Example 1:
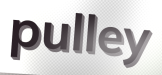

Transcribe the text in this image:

pulley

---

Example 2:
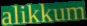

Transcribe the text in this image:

alikkum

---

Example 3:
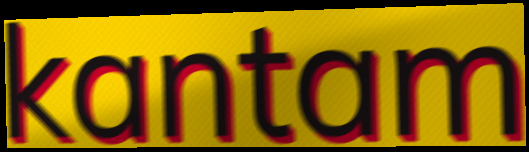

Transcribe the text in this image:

kantam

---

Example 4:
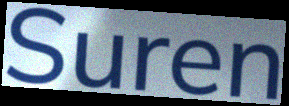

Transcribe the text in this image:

Suren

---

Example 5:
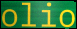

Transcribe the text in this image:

olio